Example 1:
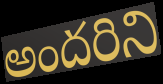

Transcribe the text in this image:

అందరిని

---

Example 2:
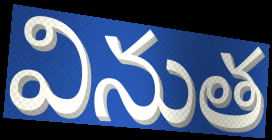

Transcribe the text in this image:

వినుత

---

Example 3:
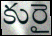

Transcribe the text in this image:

కురై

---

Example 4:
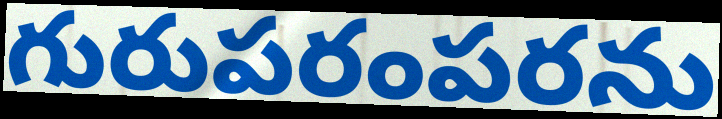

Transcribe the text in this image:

గురుపరంపరను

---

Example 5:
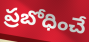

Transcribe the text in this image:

ప్రబోధించే